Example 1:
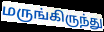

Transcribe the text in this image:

மருங்கிருந்து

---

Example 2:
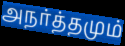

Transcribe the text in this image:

அநர்த்தமும்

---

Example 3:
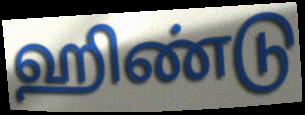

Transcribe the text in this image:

ஹிண்டு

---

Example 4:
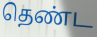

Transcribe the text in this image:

தெண்ட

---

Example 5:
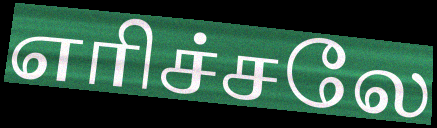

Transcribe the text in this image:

எரிச்சலே